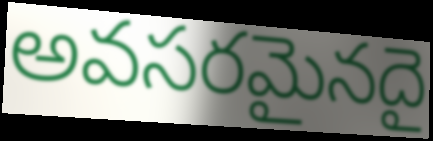
అవసరమైనదై